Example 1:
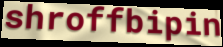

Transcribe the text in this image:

shroffbipin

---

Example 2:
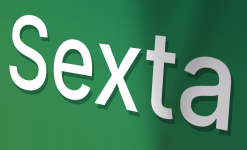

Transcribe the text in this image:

Sexta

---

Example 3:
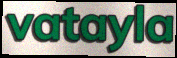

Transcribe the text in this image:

vatayla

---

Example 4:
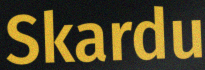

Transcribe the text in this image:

Skardu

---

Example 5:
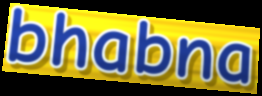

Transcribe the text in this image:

bhabna